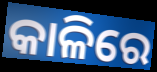
କାଳିରେ